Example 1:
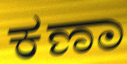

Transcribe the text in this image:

ಕಣಾ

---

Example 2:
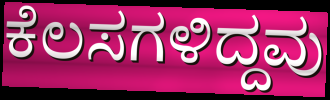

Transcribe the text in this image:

ಕೆಲಸಗಳಿದ್ದವು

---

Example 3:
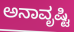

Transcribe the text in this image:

ಅನಾವೃಷ್ಟಿ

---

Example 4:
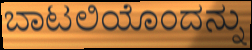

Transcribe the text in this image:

ಬಾಟಲಿಯೊಂದನ್ನು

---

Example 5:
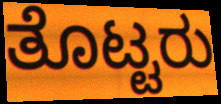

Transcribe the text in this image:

ತೊಟ್ಟರು